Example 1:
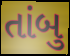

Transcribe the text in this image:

તાંબુ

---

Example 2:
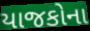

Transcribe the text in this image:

યાજકોના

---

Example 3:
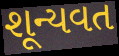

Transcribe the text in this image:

શૂન્યવત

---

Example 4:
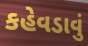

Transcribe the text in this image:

કહેવડાવું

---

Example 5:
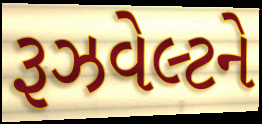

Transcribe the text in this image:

રૂઝવેલ્ટને